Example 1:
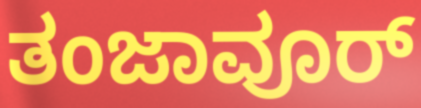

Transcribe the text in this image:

ತಂಜಾವೂರ್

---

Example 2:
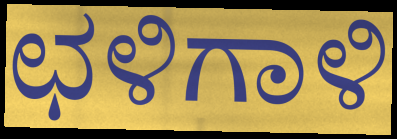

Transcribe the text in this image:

ಛಳಿಗಾಳಿ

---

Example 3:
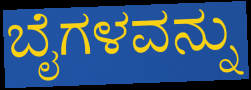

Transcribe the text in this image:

ಬೈಗಳವನ್ನು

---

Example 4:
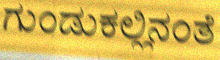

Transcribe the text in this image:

ಗುಂಡುಕಲ್ಲಿನಂತೆ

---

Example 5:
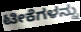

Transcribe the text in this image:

ಟೀಕೆಗಳನ್ನು